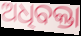
ଅଧିବକ୍ତା